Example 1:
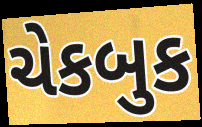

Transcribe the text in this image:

ચેકબુક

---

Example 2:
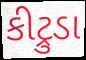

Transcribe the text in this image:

કીટ્રુડા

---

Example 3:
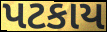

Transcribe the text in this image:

પટકાય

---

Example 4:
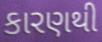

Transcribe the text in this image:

કારણથી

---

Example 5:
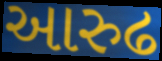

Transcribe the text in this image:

આરુઢ